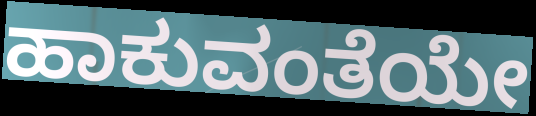
ಹಾಕುವಂತೆಯೇ